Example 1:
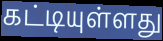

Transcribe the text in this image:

கட்டியுள்ளது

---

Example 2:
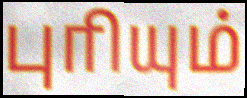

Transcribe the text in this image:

புரியும்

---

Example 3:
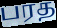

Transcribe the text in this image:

பரத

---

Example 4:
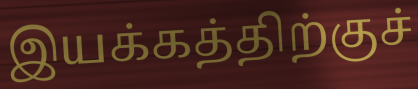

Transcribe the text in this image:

இயக்கத்திற்குச்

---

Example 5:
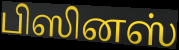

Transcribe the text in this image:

பிஸினஸ்